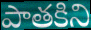
పాతకిని